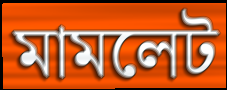
মামলেট